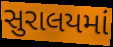
સુરાલયમાં